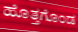
ಹೊತ್ತಗೊಂಡ